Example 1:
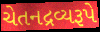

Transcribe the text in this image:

ચેતનદ્રવ્યરૂપે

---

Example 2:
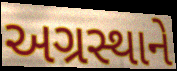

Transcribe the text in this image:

અગ્રસ્થાને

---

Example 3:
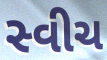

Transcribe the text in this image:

સ્વીચ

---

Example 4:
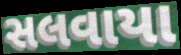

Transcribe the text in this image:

સલવાયા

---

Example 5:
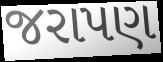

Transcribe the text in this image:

જરાપણ